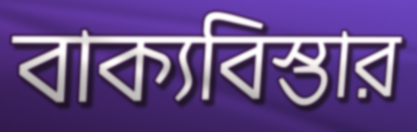
বাক্যবিস্তার